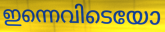
ഇന്നെവിടെയോ